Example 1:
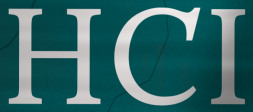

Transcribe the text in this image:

HCI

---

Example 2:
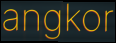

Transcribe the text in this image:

angkor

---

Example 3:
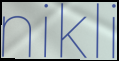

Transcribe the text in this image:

nikli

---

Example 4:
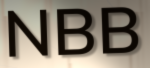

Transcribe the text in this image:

NBB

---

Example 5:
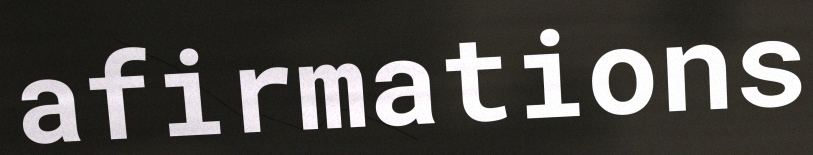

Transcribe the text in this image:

afirmations